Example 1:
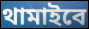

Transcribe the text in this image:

থামাইবে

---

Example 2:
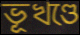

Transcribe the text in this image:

ভূখণ্ডে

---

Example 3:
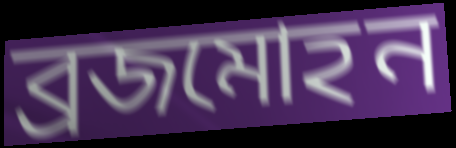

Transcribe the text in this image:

ব্রজমোহন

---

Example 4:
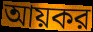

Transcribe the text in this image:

আয়কর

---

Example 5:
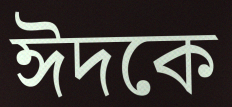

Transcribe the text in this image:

ঈদকে